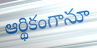
ఆర్థికంగానూ